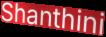
Shanthini